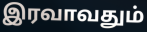
இரவாவதும்